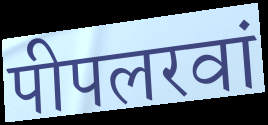
पीपलरवां